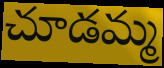
చూడమ్మ